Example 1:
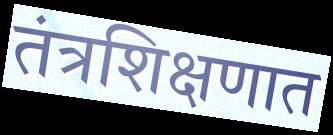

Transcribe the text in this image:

तंत्रशिक्षणात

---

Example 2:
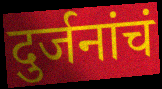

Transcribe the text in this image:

दुर्जनांचं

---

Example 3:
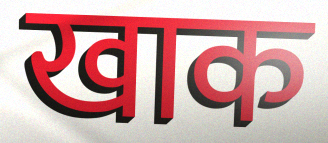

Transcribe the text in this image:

खाक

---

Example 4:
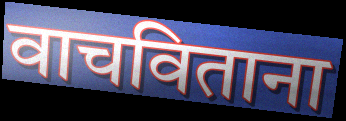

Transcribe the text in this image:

वाचविताना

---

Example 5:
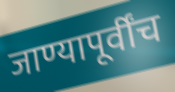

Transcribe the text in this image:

जाण्यापूर्वींच